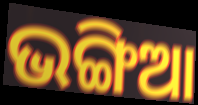
ଭଙ୍ଗିଆ